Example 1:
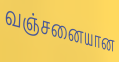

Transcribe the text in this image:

வஞ்சனையான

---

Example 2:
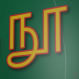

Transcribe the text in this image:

நூ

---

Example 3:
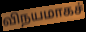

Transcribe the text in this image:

விநயமாகச்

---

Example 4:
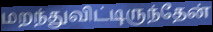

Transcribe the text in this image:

மறந்துவிட்டிருந்தேன்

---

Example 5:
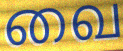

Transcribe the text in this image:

வை